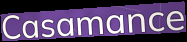
Casamance